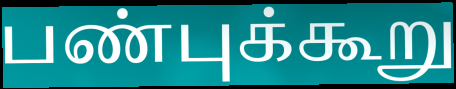
பண்புக்கூறு